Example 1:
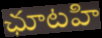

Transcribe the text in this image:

ఛూటహి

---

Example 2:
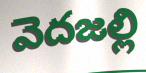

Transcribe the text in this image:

వెదజల్లి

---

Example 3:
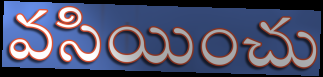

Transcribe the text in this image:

వసియించు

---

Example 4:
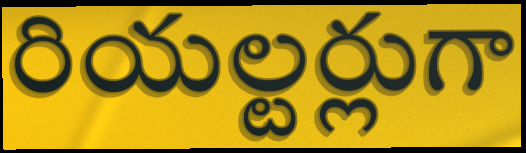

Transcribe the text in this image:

రియల్టర్లుగా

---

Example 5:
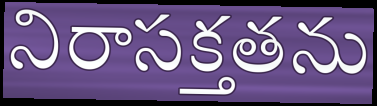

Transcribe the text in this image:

నిరాసక్తతను